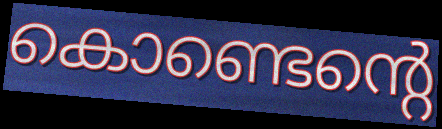
കൊണ്ടെന്റെ